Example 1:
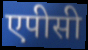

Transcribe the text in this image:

एपीसी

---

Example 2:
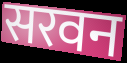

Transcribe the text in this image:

सरवन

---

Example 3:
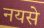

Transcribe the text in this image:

नयसे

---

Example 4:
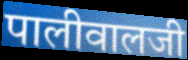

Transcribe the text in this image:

पालीवालजी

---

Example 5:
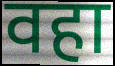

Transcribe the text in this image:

वहा